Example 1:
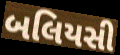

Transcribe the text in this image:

બલિયસી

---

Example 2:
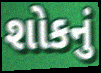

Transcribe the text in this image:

શોકનું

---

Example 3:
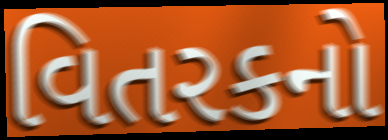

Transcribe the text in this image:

વિતરકનો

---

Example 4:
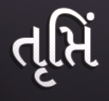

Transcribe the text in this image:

તૃપ્તિં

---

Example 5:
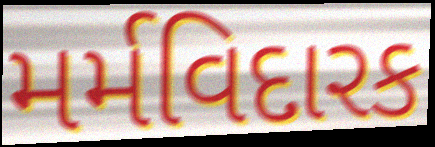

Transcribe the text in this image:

મર્મવિદારક